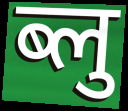
ब्लु